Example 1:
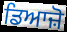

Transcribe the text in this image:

ਡਿਆਜ਼ੋ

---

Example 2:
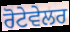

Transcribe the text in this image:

ਰੋਟੇਵੇਲਰ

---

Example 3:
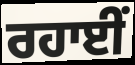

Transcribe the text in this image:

ਰਹਾਈਂ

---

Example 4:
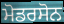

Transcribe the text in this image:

ਮੋਡਰਸੋਨ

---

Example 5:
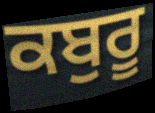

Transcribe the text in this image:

ਕਬੁਰੂ